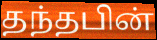
தந்தபின்